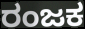
ರಂಜಕ